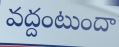
వద్దంటుందా